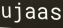
ujaas